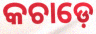
କଚାଡ଼େ